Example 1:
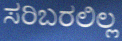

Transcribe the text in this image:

ಸರಿಬರಲಿಲ್ಲ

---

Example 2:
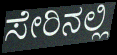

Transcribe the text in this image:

ಸೇರಿನಲ್ಲಿ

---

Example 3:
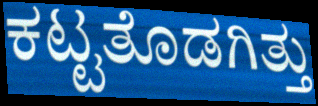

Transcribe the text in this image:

ಕಟ್ಟತೊಡಗಿತ್ತು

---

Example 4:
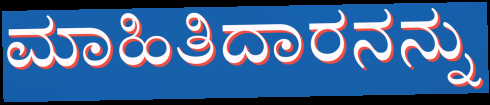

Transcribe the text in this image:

ಮಾಹಿತಿದಾರನನ್ನು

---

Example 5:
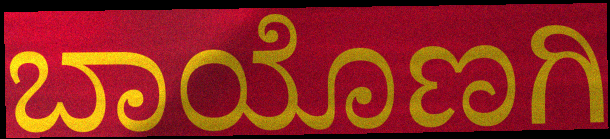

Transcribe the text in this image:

ಬಾಯೊಣಗಿ